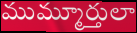
ముమ్మూర్తులా